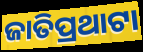
ଜାତିପ୍ରଥାଟା